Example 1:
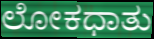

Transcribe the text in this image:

ಲೋಕಧಾತು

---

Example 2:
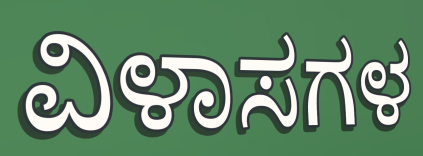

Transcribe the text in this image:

ವಿಳಾಸಗಳ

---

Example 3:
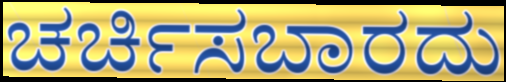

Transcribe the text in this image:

ಚರ್ಚಿಸಬಾರದು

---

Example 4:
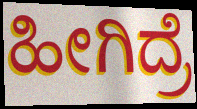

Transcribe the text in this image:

ಹೀಗಿದ್ರೆ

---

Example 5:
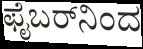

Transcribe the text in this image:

ಫೈಬರ್‌ನಿಂದ